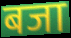
बजा